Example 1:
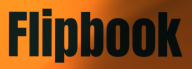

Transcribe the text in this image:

Flipbook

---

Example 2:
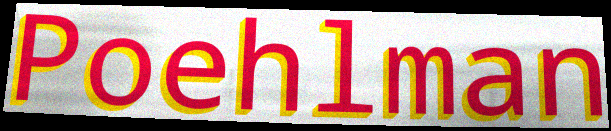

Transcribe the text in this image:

Poehlman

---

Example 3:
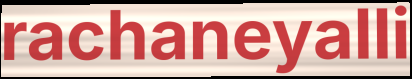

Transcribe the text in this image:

rachaneyalli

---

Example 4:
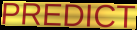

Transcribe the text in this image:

PREDICT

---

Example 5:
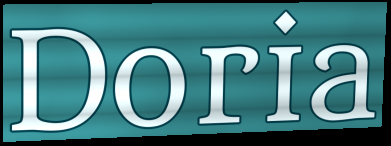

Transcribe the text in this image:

Doria